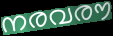
നരവരൗ